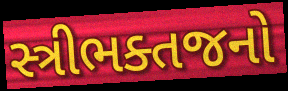
સ્ત્રીભક્તજનો